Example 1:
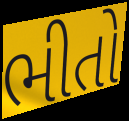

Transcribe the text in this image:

ભીતો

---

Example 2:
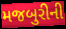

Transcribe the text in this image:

મજબુરીની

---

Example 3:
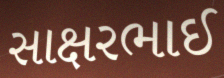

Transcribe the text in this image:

સાક્ષરભાઈ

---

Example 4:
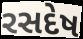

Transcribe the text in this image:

રસદેષ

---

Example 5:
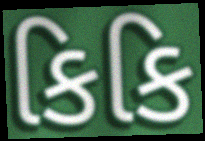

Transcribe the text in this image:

કિકિ